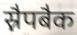
स्नैपबैक